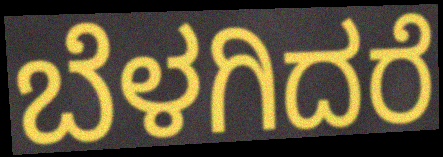
ಬೆಳಗಿದರೆ